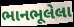
ભાનભૂલેલા